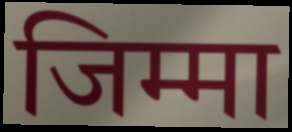
जिम्‍मा